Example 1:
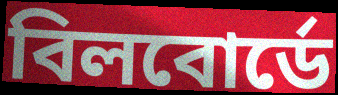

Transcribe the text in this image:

বিলবোর্ডে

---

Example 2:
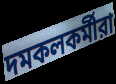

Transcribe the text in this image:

দমকলকর্মীরা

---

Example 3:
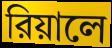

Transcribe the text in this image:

রিয়ালে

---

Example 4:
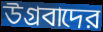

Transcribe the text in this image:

উগ্রবাদের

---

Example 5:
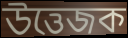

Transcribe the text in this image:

উত্তেজক